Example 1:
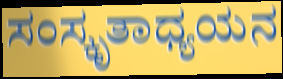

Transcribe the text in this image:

ಸಂಸ್ಕೃತಾಧ್ಯಯನ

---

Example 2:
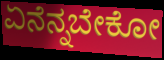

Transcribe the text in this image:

ಏನೆನ್ನಬೇಕೋ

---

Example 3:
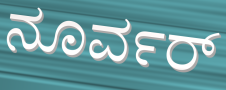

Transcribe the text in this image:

ನೂರ್ವರ್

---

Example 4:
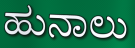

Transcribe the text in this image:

ಹುನಾಲು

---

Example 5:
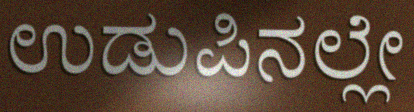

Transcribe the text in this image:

ಉಡುಪಿನಲ್ಲೇ